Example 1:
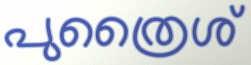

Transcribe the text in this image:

പുത്രൈശ്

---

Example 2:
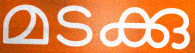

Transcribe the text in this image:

മടക്കു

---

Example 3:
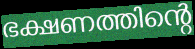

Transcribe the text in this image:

ഭക്ഷണത്തിന്റെ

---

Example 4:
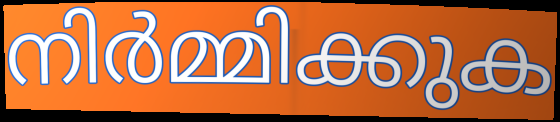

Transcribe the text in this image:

നിർമ്മിക്കുക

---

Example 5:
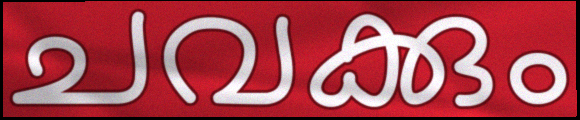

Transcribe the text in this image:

ചവക്കും